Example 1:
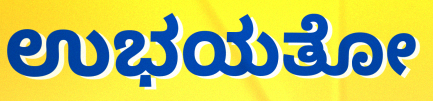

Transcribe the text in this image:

ಉಭಯತೋ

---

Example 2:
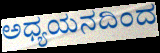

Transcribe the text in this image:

ಅಧ್ಯಯನದಿಂದ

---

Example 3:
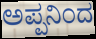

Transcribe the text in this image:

ಅಪ್ಪನಿಂದ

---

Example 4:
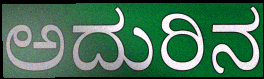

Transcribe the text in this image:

ಅದುರಿನ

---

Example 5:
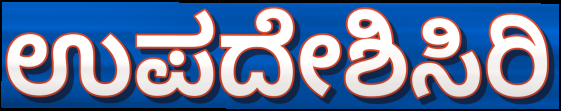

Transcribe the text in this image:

ಉಪದೇಶಿಸಿರಿ